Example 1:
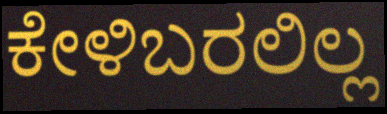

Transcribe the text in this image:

ಕೇಳಿಬರಲಿಲ್ಲ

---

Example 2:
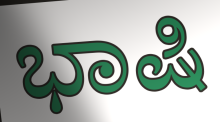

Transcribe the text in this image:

ಭಾಷಿ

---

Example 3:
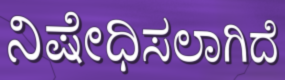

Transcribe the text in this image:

ನಿಷೇಧಿಸಲಾಗಿದೆ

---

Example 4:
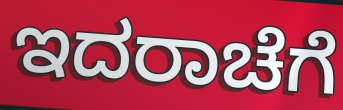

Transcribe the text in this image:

ಇದರಾಚೆಗೆ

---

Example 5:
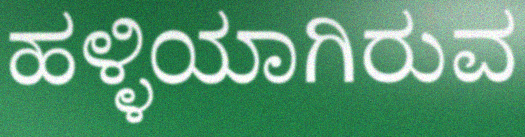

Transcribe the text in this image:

ಹಳ್ಳಿಯಾಗಿರುವ